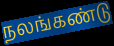
நலங்கண்டு